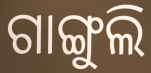
ଗାଙ୍ଗୁଲି